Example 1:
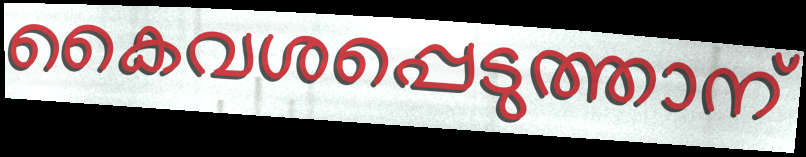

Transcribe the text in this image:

കൈവശപ്പെടുത്താന്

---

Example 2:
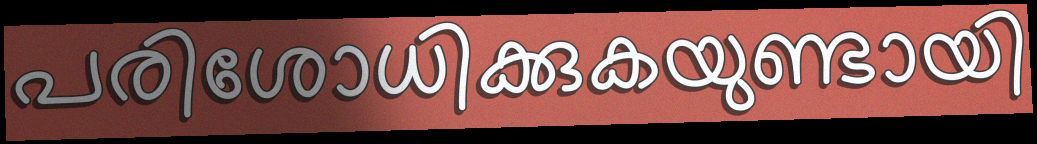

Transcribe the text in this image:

പരിശോധിക്കുകയുണ്ടായി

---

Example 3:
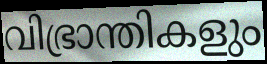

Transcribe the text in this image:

വിഭ്രാന്തികളും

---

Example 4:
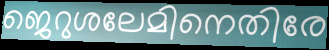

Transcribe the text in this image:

ജെറുശലേമിനെതിരേ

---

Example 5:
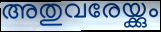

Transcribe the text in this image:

അതുവരേയ്ക്കും